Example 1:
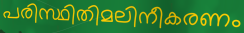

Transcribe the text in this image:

പരിസ്ഥിതിമലിനീകരണം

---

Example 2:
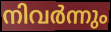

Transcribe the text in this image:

നിവർന്നും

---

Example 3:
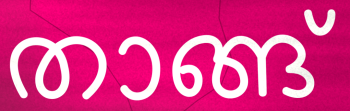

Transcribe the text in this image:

താങ്ങ്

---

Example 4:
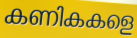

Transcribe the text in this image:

കണികകളെ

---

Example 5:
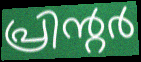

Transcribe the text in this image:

പ്രിന്റർ